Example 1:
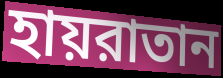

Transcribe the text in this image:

হায়রাতান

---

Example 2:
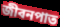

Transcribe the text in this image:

জীবনপাত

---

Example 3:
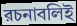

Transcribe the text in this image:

রচনাবলিই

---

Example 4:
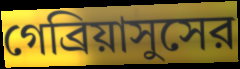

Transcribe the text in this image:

গেব্রিয়াসুসের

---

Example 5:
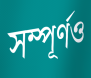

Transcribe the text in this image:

সম্পূর্ণও